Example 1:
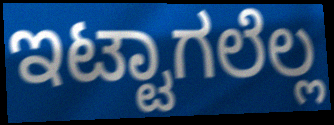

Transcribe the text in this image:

ಇಟ್ಟಾಗಲೆಲ್ಲ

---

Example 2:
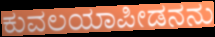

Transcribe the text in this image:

ಕುವಲಯಾಪೀಡನನು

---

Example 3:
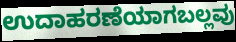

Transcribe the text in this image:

ಉದಾಹರಣೆಯಾಗಬಲ್ಲವು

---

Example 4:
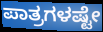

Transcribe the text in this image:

ಪಾತ್ರಗಳಷ್ಟೇ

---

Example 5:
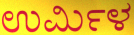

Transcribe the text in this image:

ಉರ್ಮಿಳ